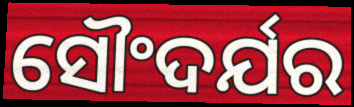
ସୌଂଦର୍ଯର